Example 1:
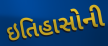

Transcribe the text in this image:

ઇતિહાસોની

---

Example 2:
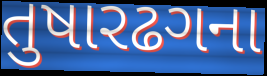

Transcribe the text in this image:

તુષારઢગના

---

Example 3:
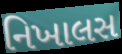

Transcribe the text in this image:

નિખાલસ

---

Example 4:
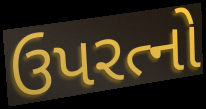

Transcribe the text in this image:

ઉપરત્નો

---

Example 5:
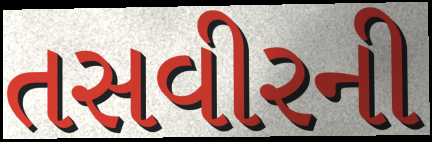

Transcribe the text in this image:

તસવીરની